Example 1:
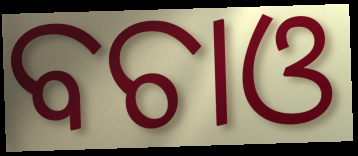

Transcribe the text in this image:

ବଚାଓ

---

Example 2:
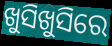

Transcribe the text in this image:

ଖୁସିଖୁସିରେ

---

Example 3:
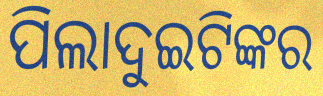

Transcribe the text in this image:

ପିଲାଦୁଇଟିଙ୍କର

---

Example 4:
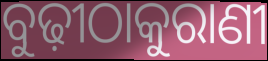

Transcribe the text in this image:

ବୁଢ଼ୀଠାକୁରାଣୀ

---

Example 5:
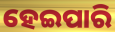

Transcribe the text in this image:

ହେଇପାରି